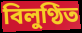
বিলুণ্ঠিত